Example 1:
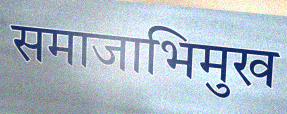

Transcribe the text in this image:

समाजाभिमुख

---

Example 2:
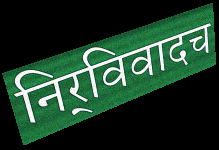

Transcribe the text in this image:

निर्विवादच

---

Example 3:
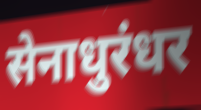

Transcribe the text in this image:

सेनाधुरंधर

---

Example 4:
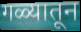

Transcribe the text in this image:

गळ्यातून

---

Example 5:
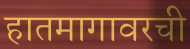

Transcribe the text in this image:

हातमागावरची